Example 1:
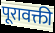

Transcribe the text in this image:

पूरावक्ती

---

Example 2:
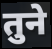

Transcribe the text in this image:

तुने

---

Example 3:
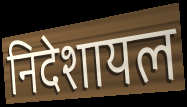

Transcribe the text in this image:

निदेशायल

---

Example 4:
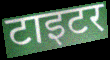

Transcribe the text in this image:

टाइटर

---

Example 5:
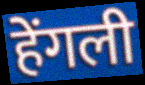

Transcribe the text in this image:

हेंगली